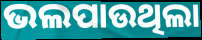
ଭଲପାଉଥିଲା